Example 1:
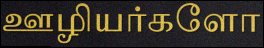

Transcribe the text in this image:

ஊழியர்களோ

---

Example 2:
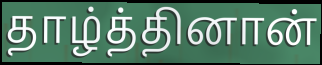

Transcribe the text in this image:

தாழ்த்தினான்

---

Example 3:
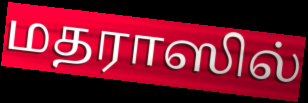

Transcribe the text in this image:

மதராஸில்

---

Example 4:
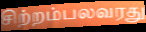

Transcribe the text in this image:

சிற்றம்பலவரது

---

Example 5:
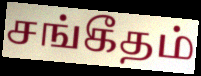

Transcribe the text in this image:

சங்கீதம்